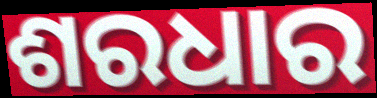
ଶରଧାର